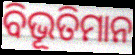
ବିଭୂତିମାନ